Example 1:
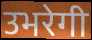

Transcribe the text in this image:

उभरेगी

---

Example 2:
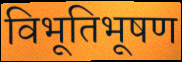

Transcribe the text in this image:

विभूतिभूषण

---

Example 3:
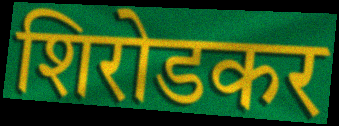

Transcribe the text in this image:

शिरोडकर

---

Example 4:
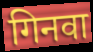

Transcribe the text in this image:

गिनवा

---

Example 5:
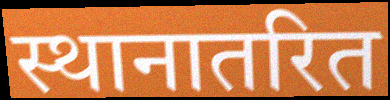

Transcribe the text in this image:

स्थानातरित